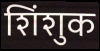
शिंशुक